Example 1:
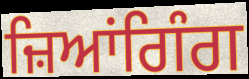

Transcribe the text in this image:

ਜ਼ਿਆਂਗਿੰਗ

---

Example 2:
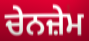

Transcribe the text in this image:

ਚੇਨਜ਼ੇਮ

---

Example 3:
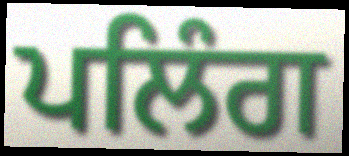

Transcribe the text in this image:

ਪਲਿੰਗ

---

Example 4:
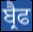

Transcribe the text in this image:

ਬ੍ਰੈਫ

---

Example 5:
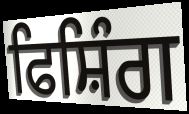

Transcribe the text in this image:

ਫਿਸ਼ਿੰਗ